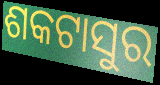
ଶକଟାସୁର